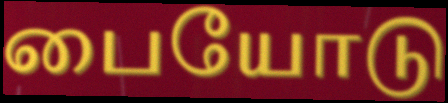
பையோடு